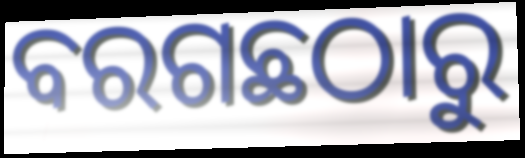
ବରଗଛଠାରୁ